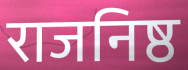
राजनिष्ठ